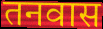
तनवास